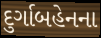
દુર્ગાબહેનના